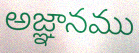
అజ్ఞానము